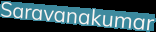
Saravanakumar